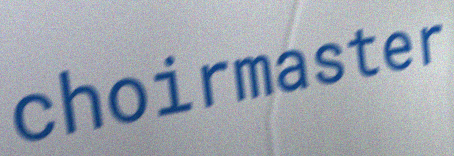
choirmaster